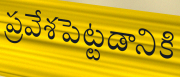
ప్రవేశపెట్టడానికి